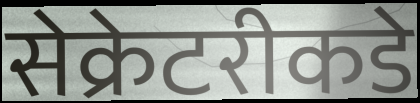
सेक्रेटरीकडे